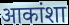
आकांशा